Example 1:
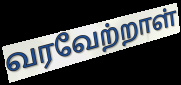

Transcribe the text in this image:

வரவேற்றாள்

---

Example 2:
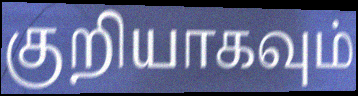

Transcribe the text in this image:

குறியாகவும்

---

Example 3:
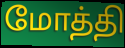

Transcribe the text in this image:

மோத்தி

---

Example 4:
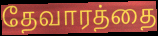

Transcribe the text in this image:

தேவாரத்தை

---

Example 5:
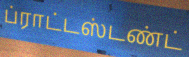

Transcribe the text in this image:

ப்ராட்டஸ்டண்ட்